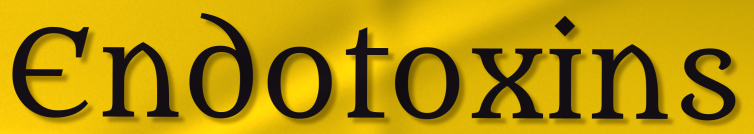
Endotoxins